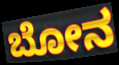
ಬೋನ